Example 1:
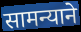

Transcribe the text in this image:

सामन्याने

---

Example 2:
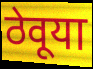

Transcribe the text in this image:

ठेवूया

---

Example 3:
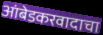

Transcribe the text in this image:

आंबेडकरवादाचा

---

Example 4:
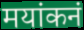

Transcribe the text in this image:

मयांकनं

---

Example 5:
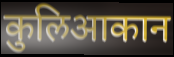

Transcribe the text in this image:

कुलिआकान